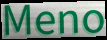
Meno